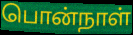
பொன்நாள்